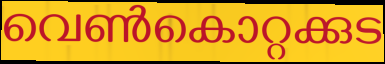
വെൺകൊറ്റക്കുട